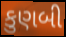
કુણબી